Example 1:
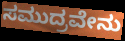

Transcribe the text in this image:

ಸಮುದ್ರವೇನು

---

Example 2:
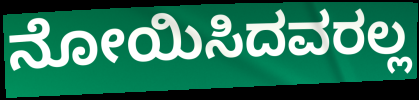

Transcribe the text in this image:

ನೋಯಿಸಿದವರಲ್ಲ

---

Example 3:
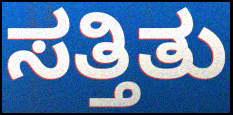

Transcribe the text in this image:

ಸತ್ತಿತು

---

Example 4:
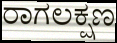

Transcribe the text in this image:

ರಾಗಲಕ್ಷಣ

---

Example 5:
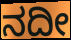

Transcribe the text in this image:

ನದೀ